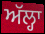
ਅੱਲ੍ਹਾ